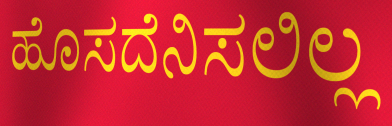
ಹೊಸದೆನಿಸಲಿಲ್ಲ